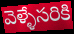
వెళ్ళేసరికి